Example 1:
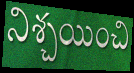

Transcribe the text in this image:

నిశ్చయించి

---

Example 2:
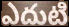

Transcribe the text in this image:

ఎదుటి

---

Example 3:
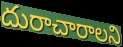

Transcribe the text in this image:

దురాచారాలని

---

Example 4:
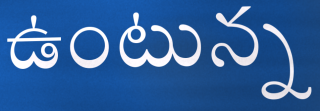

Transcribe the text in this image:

ఉంటున్న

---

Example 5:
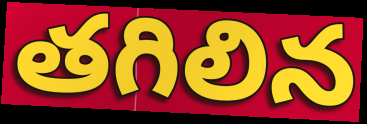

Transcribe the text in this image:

తగిలిన